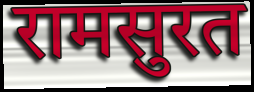
रामसुरत